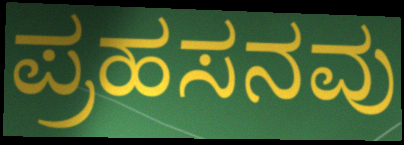
ಪ್ರಹಸನವು